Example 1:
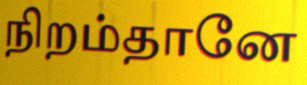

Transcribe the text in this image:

நிறம்தானே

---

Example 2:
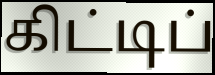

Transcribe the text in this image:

கிட்டிப்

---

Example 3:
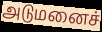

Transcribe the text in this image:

அடுமனைச்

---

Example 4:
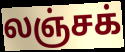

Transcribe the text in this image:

லஞ்சக்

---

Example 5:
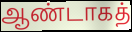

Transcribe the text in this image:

ஆண்டாகத்